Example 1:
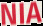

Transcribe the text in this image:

NIA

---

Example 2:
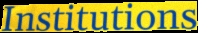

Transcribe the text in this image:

Institutions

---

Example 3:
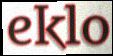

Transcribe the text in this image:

eklo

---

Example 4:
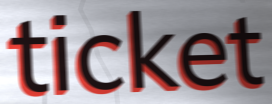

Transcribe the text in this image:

ticket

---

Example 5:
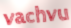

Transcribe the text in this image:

vachvu